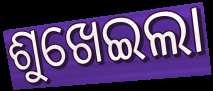
ଶୁଖେଇଲା